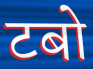
टबो